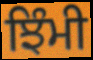
ਝਿੰਮੀ